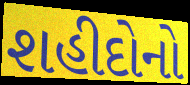
શહીદોનો